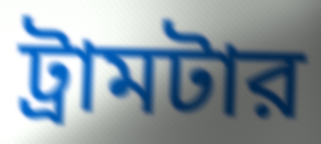
ট্রামটার